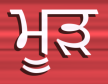
ਮੂੜ